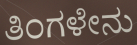
ತಿಂಗಳೇನು